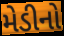
મેડીનો